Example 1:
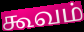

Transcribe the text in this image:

கூவம்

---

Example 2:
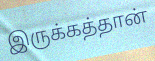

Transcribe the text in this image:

இருக்கத்தான்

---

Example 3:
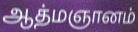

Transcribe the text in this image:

ஆத்மஞானம்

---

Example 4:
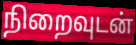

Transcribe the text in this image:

நிறைவுடன்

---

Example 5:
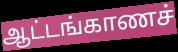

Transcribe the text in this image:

ஆட்டங்காணச்